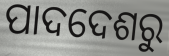
ପାଦଦେଶରୁ